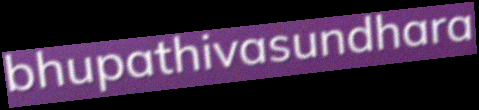
bhupathivasundhara